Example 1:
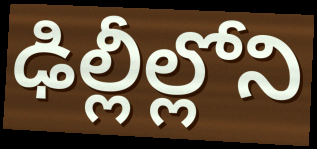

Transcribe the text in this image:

ఢిల్లీల్లోని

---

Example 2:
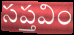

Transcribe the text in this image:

సప్తవిం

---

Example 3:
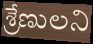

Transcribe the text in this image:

శ్రేణులని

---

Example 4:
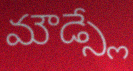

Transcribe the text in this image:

మౌడ్స్లే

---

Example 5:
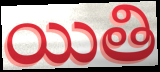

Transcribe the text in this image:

యితి